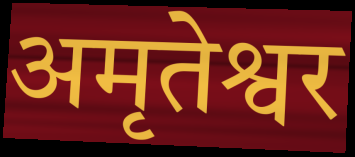
अमृतेश्वर